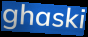
ghaski